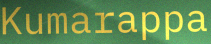
Kumarappa